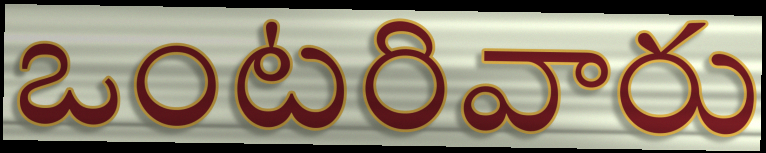
ఒంటరివారు